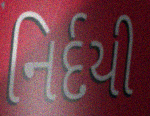
નિર્દયી